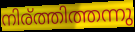
നിര്ത്തിത്തന്നു